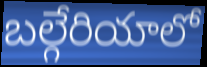
బల్గేరియాలో